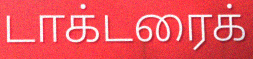
டாக்டரைக்